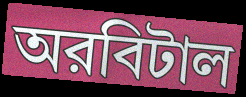
অরবিটাল